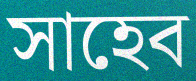
সাহেব